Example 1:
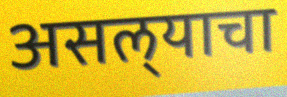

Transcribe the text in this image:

असल्याचा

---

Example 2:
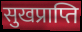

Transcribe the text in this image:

सुखप्राप्ति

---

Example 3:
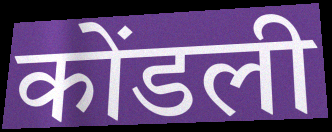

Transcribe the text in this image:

कोंडली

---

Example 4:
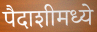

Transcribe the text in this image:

पैदाशीमध्ये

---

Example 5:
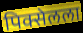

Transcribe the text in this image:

पिक्सेलला